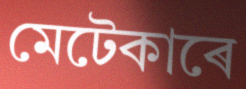
মেটেকাৰে